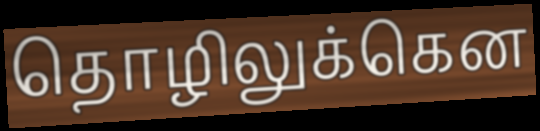
தொழிலுக்கென